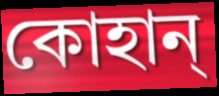
কোহান্